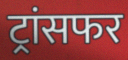
ट्रांसफर